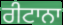
ਰੀਟਾਨਾ